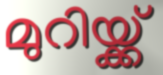
മുറിയ്ക്ക്